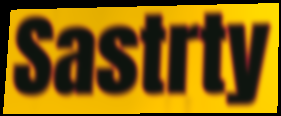
Sastrty